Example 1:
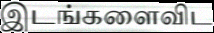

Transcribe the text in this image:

இடங்களைவிட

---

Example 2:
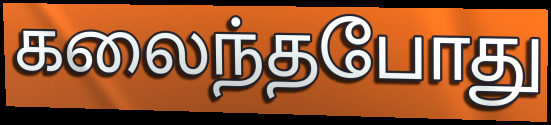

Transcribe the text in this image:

கலைந்தபோது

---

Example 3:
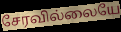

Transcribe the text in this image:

சேரவில்லையே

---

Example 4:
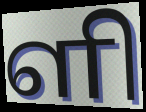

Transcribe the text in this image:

ளி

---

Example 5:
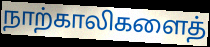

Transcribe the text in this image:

நாற்காலிகளைத்